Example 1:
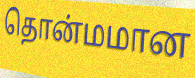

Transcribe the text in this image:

தொன்மமான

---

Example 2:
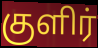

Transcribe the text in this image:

குளிர்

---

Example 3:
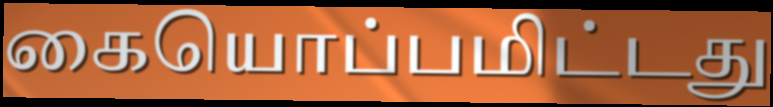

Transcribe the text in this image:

கையொப்பமிட்டது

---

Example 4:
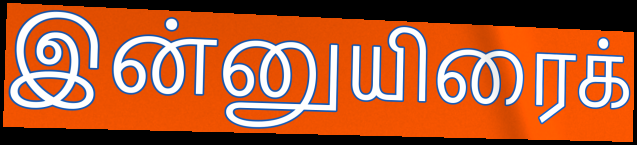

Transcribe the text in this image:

இன்னுயிரைக்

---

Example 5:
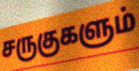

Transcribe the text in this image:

சருகுகளும்